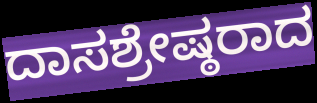
ದಾಸಶ್ರೇಷ್ಠರಾದ